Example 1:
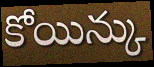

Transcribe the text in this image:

కోయిన్కు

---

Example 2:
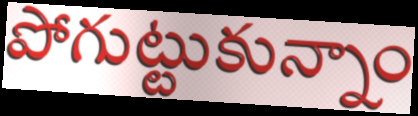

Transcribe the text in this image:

పోగుట్టుకున్నాం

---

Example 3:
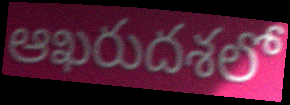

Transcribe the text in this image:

ఆఖరుదశలో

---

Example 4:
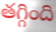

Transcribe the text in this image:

తగ్గింది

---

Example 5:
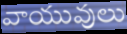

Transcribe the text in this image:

వాయువులు